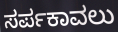
ಸರ್ಪಕಾವಲು